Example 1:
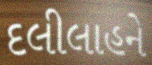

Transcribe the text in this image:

દલીલાહને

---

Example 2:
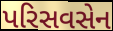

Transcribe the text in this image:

પરિસવસેન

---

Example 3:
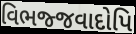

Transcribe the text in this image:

વિભજ્જવાદોપિ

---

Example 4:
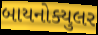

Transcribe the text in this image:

બાયનોક્યુલર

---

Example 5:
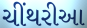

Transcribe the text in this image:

ચીંથરીઆ